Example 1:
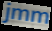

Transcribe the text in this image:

jmm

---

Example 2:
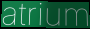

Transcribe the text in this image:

atrium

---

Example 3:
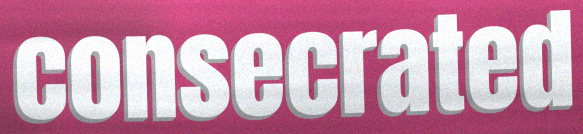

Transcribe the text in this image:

consecrated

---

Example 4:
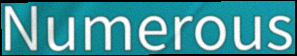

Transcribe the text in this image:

Numerous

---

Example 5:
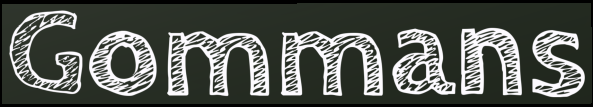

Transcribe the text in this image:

Gommans